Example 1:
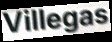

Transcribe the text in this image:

Villegas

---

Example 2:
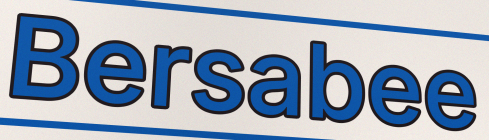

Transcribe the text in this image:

Bersabee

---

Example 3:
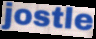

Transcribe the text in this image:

jostle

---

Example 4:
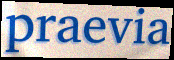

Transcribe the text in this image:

praevia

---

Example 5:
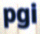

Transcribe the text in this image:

pgi